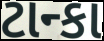
ટાન્કા